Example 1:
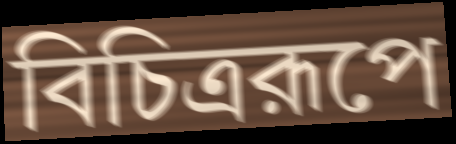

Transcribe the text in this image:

বিচিত্ররূপে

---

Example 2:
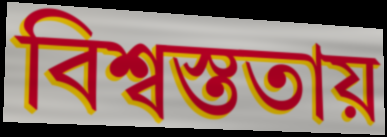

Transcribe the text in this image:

বিশ্বস্ততায়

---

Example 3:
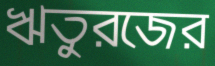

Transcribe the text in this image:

ঋতুরজের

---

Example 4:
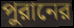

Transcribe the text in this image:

পুরানের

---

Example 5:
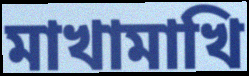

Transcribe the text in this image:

মাখামাখি